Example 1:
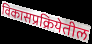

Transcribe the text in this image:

विकासप्रक्रियेतील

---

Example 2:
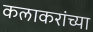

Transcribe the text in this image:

कलाकरांच्या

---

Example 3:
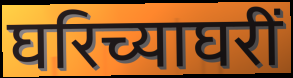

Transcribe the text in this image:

घरिच्याघरीं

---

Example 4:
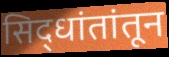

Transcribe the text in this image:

सिद्धांतांतून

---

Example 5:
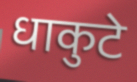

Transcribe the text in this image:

धाकुटे